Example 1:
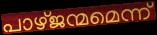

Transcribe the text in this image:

പാഴ്ജന്മമെന്ന്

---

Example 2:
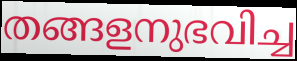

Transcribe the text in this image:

തങ്ങളനുഭവിച്ച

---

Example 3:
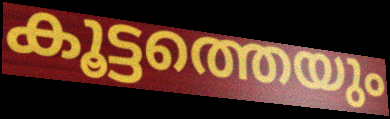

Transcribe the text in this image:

കൂട്ടത്തെയും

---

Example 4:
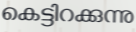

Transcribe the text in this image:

കെട്ടിറക്കുന്നു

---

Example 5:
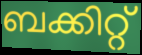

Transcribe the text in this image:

ബക്കിറ്റ്